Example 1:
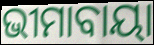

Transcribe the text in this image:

ଭୀମାବାୟା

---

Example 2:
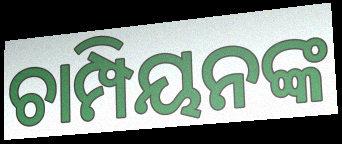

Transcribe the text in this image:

ଚାମ୍ପିୟନଙ୍କ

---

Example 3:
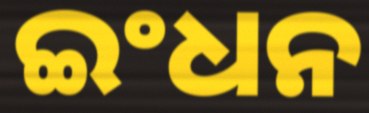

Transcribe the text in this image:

ଇଂଧନ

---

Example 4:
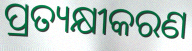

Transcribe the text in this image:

ପ୍ରତ୍ୟକ୍ଷୀକରଣ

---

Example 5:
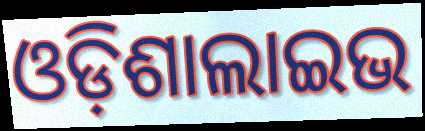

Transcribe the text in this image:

ଓଡ଼ିଶାଲାଇଭ